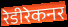
रेडीरेकनर